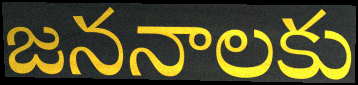
జననాలకు